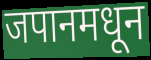
जपानमधून